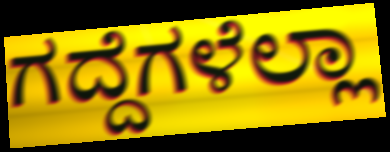
ಗದ್ದೆಗಳೆಲ್ಲಾ